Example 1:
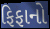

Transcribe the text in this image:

ફિફાનો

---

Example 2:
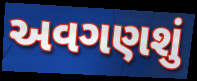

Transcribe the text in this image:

અવગણશું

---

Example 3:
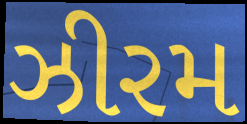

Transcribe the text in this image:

ઝીરમ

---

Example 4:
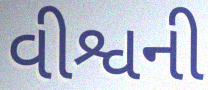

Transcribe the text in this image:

વીશ્વની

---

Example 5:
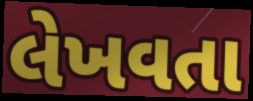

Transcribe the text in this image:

લેખવતા